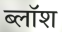
ब्लॉश